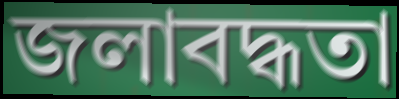
জলাবদ্ধতা